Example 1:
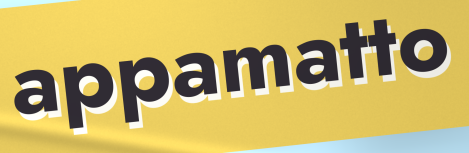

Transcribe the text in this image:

appamatto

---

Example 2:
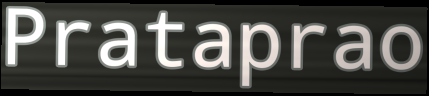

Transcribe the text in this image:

Prataprao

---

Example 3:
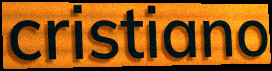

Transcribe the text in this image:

cristiano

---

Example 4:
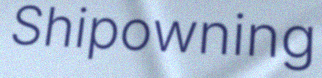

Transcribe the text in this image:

Shipowning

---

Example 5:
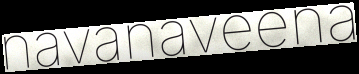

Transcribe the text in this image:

navanaveena